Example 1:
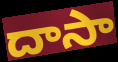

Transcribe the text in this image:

దాసా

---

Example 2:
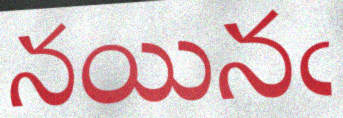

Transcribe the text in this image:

నయినఁ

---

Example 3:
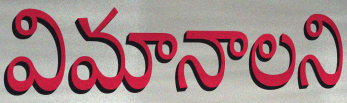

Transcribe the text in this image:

విమానాలని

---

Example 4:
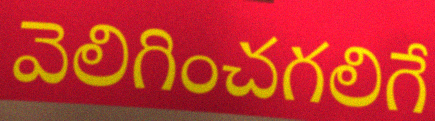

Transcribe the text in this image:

వెలిగించగలిగే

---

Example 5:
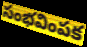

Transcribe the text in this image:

సంభవింపక